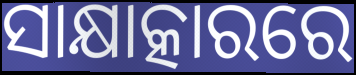
ସାକ୍ଷାତ୍କାରରେ